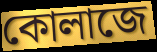
কোলাজে